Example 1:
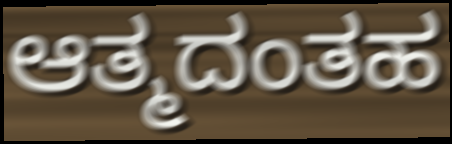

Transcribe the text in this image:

ಆತ್ಮದಂತಹ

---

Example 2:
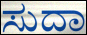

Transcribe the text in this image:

ಸುದಾ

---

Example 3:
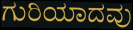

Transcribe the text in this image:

ಗುರಿಯಾದವು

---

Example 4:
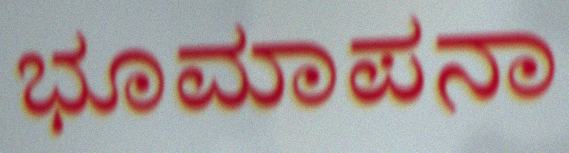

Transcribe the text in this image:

ಭೂಮಾಪನಾ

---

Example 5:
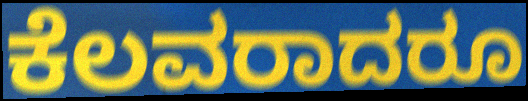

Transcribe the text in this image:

ಕೆಲವರಾದರೂ